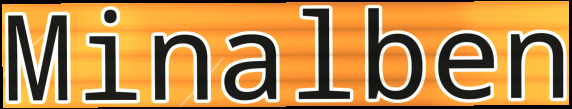
Minalben